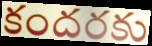
కందరకు